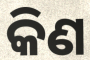
କିଣ